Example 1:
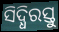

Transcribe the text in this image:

ସିଦ୍ଧିରସ୍ତୁ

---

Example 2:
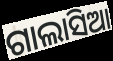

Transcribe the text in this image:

ଗାଲାସିଆ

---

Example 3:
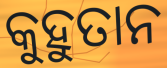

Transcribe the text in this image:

କୁହୁତାନ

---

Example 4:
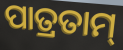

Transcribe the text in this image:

ପାତ୍ରତାମ୍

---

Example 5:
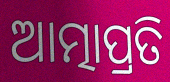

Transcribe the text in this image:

ଆତ୍ମାପ୍ରତି